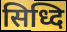
सिध्दि